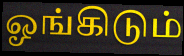
ஓங்கிடும்